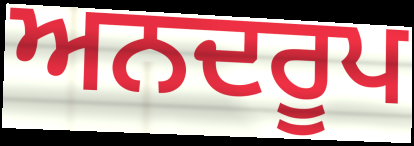
ਅਨਦਰੂਪ